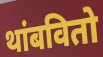
थांबवितो